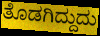
ತೊಡಗಿದ್ದುದು